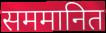
सममानित